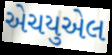
એચયુએલ